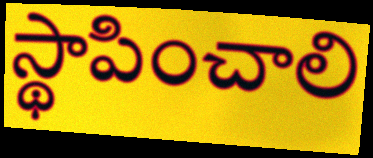
స్థాపించాలి